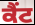
ਕੈਂਟ